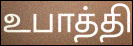
உபாத்தி